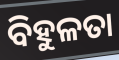
ବିହୁଳତା